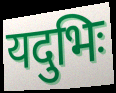
यदुभिः